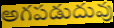
అగపడుదువు